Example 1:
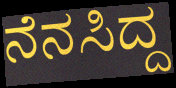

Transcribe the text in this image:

ನೆನಸಿದ್ದ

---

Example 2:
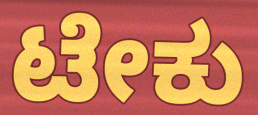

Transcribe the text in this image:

ಟೇಕು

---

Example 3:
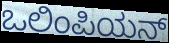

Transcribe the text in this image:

ಒಲಿಂಪಿಯನ್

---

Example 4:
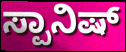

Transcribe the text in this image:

ಸ್ಪಾನಿಷ್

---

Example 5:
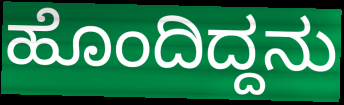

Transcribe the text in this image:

ಹೊಂದಿದ್ದನು